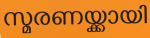
സ്മരണയ്ക്കായി